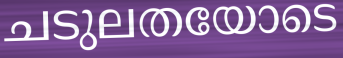
ചടുലതയോടെ